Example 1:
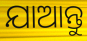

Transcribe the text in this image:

ଯାଆନ୍ତୁ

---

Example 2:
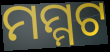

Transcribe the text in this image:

ମମ୍ମଟ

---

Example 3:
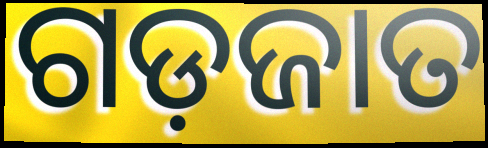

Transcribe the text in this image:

ଗଡ଼ଜାତ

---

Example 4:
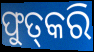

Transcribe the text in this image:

ଫୁତ୍‌କରି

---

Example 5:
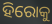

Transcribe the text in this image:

ହିରୋକୁ